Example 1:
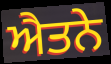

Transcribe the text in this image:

ਐਤਨੇ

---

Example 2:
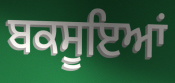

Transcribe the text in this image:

ਬਕਸੂਇਆਂ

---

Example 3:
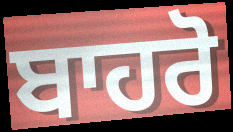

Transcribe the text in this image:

ਬਾਹਰੋ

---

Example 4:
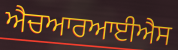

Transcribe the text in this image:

ਐਚਆਰਆਈਐਸ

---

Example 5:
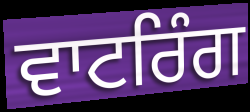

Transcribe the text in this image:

ਵਾਟਰਿੰਗ